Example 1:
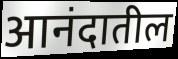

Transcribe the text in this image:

आनंदातील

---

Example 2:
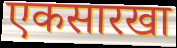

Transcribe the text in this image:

एकसारखा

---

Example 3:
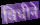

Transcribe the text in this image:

विधीने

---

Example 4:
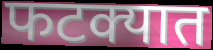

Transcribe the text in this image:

फटक्यात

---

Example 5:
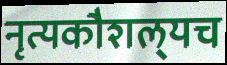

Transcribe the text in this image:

नृत्यकौशल्यच